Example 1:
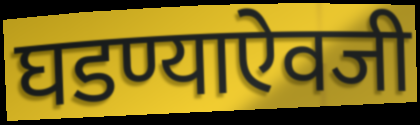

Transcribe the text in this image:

घडण्याऐवजी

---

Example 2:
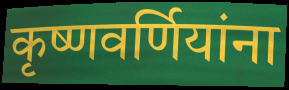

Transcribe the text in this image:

कृष्णवर्णियांना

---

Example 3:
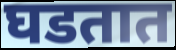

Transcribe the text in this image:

घडतात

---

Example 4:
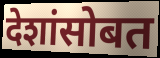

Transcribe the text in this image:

देशांसोबत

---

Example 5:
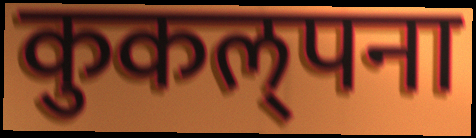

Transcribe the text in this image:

कुकल्पना